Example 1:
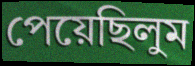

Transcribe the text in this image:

পেয়েছিলুম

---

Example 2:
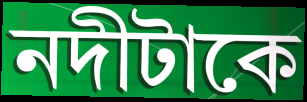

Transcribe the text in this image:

নদীটাকে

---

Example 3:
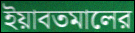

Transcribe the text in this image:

ইয়াবতমালের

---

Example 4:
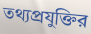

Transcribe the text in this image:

তথ্যপ্রযুক্তির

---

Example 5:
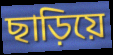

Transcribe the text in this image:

ছাড়িয়ে